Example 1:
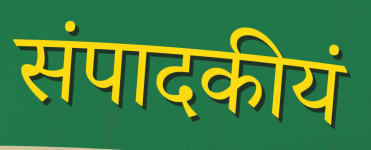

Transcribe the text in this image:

संपादकीयं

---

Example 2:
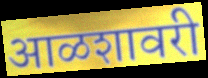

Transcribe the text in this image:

आळशावरी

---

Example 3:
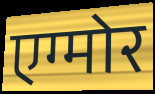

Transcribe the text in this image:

एग्मोर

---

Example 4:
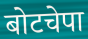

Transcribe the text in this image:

बोटचेपा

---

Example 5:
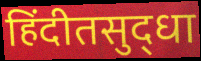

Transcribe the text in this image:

हिंदीतसुद्धा